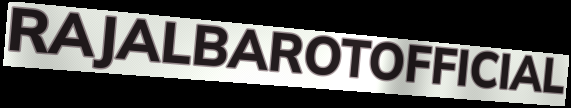
RAJALBAROTOFFICIAL